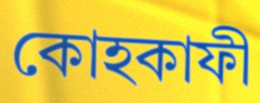
কোহকাফী